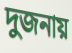
দুজনায়